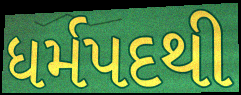
ધર્મપદથી